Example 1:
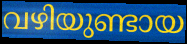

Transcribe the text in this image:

വഴിയുണ്ടായ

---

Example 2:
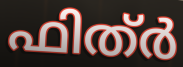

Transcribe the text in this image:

ഫിത്ർ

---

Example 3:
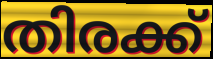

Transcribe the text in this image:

തിരക്ക്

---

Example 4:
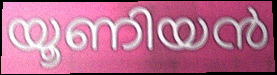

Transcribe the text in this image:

യൂണിയൻ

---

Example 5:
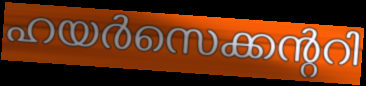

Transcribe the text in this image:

ഹയർസെക്കന്ററി